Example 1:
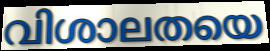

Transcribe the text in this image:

വിശാലതയെ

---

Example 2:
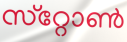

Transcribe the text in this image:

സ്‌റ്റോൺ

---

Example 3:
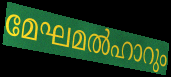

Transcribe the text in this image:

മേഘമൽഹാറും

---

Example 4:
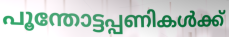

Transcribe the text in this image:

പൂന്തോട്ടപ്പണികൾക്ക്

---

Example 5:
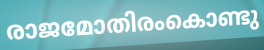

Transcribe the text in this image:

രാജമോതിരംകൊണ്ടു